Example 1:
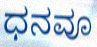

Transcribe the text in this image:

ಧನವೂ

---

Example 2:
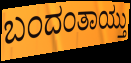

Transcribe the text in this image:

ಬಂದಂತಾಯ್ತು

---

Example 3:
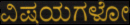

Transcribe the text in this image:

ವಿಷಯಗಳೋ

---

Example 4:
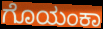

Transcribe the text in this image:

ಗೊಯಂಕಾ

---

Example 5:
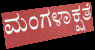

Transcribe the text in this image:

ಮಂಗಳಾಕ್ಷತೆ